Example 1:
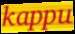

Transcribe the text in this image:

kappu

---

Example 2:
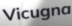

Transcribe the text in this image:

Vicugna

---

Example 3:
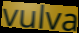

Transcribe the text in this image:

vulva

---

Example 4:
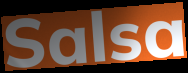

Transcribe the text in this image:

Salsa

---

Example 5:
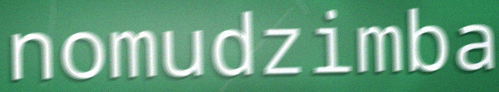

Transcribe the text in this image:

nomudzimba